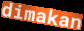
dimakan